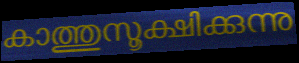
കാത്തുസൂക്ഷിക്കുന്നു